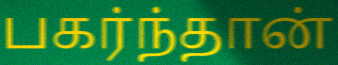
பகர்ந்தான்